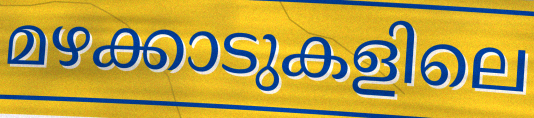
മഴക്കാടുകളിലെ